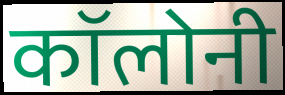
कॉलोनी